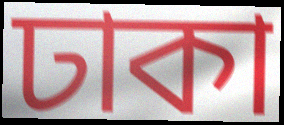
ঢাকা